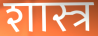
शास्त्र